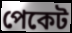
পেকেট